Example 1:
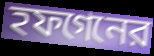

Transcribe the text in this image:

হফগেনের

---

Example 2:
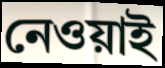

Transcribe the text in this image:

নেওয়াই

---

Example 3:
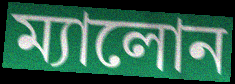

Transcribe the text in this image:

ম্যালোন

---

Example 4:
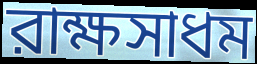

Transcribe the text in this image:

রাক্ষসাধম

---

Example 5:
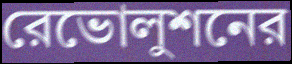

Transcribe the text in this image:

রেভোলুশনের